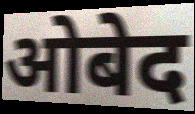
ओबेद